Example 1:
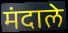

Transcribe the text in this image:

मंदाले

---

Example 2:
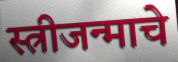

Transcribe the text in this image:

स्त्रीजन्माचे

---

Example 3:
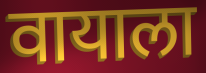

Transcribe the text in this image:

वायाला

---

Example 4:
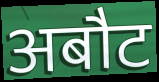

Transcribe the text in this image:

अबौट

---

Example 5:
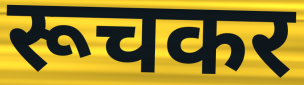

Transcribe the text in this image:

रूचकर